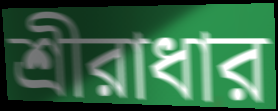
শ্রীরাধার